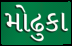
મોઢુકા